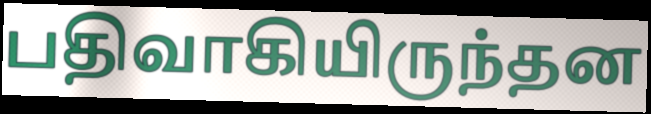
பதிவாகியிருந்தன